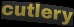
cutlery